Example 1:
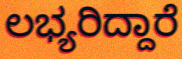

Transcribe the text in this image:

ಲಭ್ಯರಿದ್ದಾರೆ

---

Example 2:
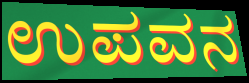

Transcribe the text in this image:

ಉಪವನ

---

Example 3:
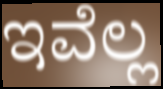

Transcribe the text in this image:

ಇವೆಲ್ಲ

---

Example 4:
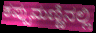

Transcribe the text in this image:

ಕಪ್ಪುಮಣ್ಣಿನಲ್ಲಿ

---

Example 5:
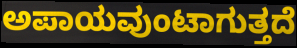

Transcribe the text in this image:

ಅಪಾಯವುಂಟಾಗುತ್ತದೆ